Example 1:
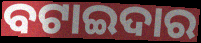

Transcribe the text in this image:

ବଟାଇଦାର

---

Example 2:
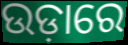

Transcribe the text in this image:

ଉଡ଼ାରେ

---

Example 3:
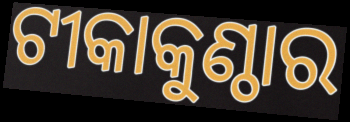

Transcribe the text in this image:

ଟୀକାକୁଣ୍ଠାର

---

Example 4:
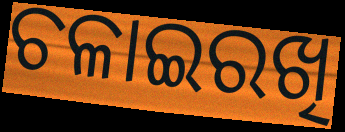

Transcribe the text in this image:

ଚଳାଇରଖି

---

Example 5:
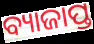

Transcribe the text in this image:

ବ୍ୟାଜାପ୍ତ